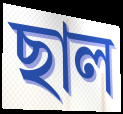
ছাল